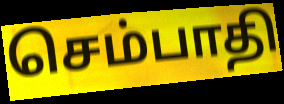
செம்பாதி